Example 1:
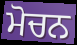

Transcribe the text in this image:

ਮੋਚਨ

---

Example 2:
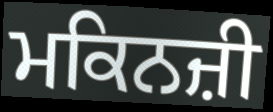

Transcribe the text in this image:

ਮਕਿਨਜ਼ੀ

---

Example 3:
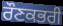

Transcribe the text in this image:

ਰੌਣਕਭਰੀ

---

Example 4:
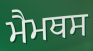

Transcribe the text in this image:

ਮੈਮਥਸ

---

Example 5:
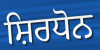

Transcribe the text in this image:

ਸ਼ਿਰਧੋਨ